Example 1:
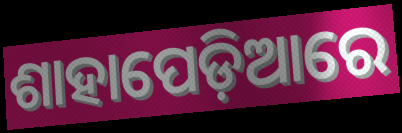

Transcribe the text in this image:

ଶାହାପେଡ଼ିଆରେ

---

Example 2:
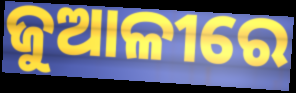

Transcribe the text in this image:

ଜୁଆଳୀରେ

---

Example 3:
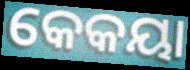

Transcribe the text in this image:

କେକୟା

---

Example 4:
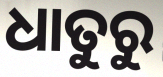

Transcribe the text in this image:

ଧାତୁରୁ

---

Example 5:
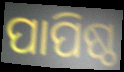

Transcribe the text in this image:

ପାପିଷ୍ଠ